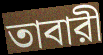
তাবারী